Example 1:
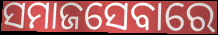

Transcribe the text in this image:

ସମାଜସେବାରେ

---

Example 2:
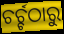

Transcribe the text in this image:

ଚର୍ଚ୍ଚଠାରୁ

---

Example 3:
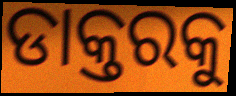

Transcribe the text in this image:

ଡାକ୍ତରକୁ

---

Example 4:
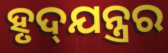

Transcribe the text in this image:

ହୃଦ୍‍ଯନ୍ତ୍ରର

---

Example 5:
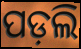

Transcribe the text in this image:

ପଡ଼ଲି